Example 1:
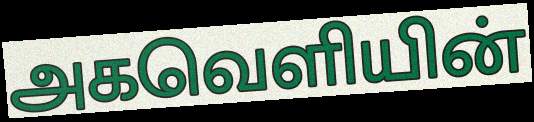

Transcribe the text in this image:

அகவெளியின்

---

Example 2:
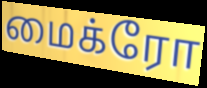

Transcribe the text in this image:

மைக்ரோ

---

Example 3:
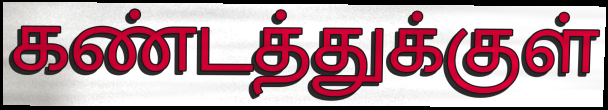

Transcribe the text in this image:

கண்டத்துக்குள்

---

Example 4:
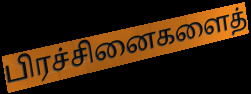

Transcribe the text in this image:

பிரச்சினைகளைத்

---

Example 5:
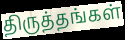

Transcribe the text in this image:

திருத்தங்கள்